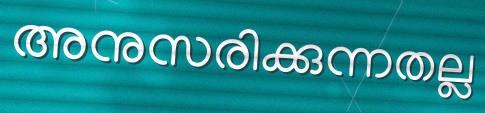
അനുസരിക്കുന്നതല്ല